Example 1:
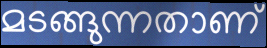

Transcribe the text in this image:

മടങ്ങുന്നതാണ്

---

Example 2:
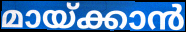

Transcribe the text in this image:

മായ്ക്കാൻ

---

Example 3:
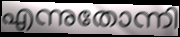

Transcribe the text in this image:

എന്നുതോന്നി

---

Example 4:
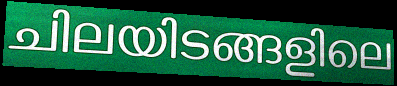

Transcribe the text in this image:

ചിലയിടങ്ങളിലെ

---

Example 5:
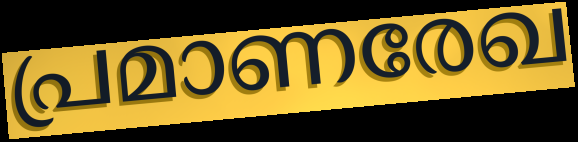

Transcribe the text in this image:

പ്രമാണരേഖ